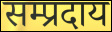
सम्प्रदाय